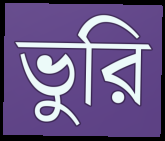
ভুরি